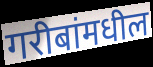
गरीबांमधील